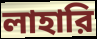
লাহারি